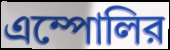
এম্পোলির